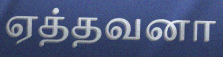
ஏத்தவனா